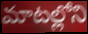
మాటల్లోని